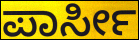
ಪಾರ್ಸೀ